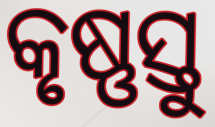
କୃଷ୍ଣସ୍ତୁ